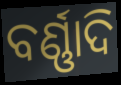
ବର୍ଣ୍ଣାଦି